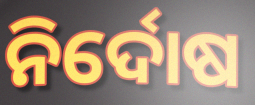
ନିର୍ଦୋଷ